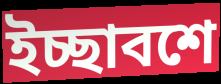
ইচ্ছাবশে